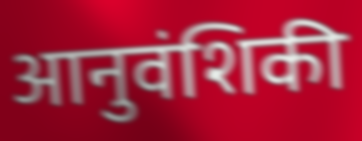
आनुवंशिकी